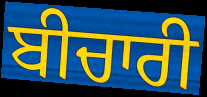
ਬੀਚਾਰੀ